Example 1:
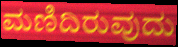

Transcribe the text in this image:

ಮಣಿದಿರುವುದು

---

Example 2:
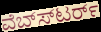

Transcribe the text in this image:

ವೆಬ್ಸ್‍ಟರ್ರ್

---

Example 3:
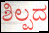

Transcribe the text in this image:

ಶಿಲ್ಪದ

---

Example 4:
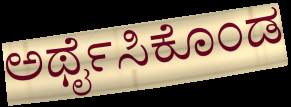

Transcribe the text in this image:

ಅರ್ಥೈಸಿಕೊಂಡ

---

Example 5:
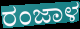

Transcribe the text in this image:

ರಂಜಾಳ